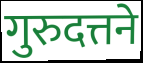
गुरुदत्तने